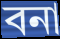
বনা